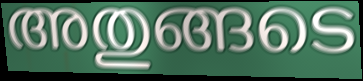
അതുങ്ങടെ